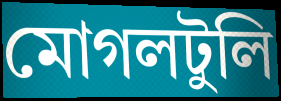
মোগলটুলি